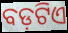
ବଡ଼ଟିଏ